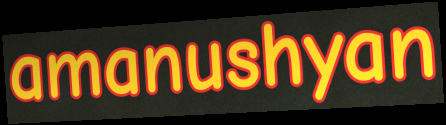
amanushyan